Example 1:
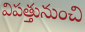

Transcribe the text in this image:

విపత్తునుంచి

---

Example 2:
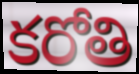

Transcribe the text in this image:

కరోతి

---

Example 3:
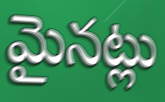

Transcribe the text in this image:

మైనట్లు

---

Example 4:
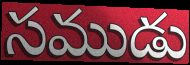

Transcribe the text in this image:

సముడు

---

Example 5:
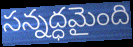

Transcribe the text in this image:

సన్నద్ధమైంది